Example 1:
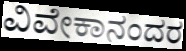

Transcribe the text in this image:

ವಿವೇಕಾನಂದರ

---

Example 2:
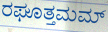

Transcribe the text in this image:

ರಘೂತ್ತಮಮ್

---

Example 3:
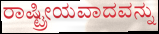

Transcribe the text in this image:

ರಾಷ್ಟ್ರೀಯವಾದವನ್ನು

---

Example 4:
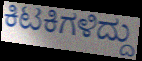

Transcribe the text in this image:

ಕಿಟಕಿಗಳಿದ್ದು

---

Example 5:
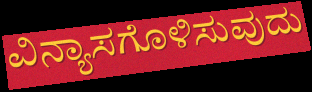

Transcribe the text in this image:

ವಿನ್ಯಾಸಗೊಳಿಸುವುದು